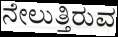
ನೇಲುತ್ತಿರುವ